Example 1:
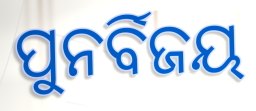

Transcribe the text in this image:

ପୁନର୍ବିଜୟ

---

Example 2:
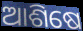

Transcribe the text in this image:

ଆଶିଷେ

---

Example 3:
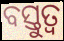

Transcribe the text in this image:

ବସ୍ତୁତ୍ୱ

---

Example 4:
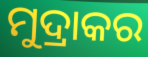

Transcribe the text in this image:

ମୁଦ୍ରାକର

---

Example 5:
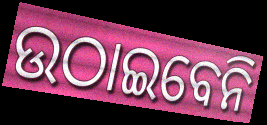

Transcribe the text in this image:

ଉଠାଇବେନି